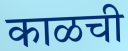
काळची